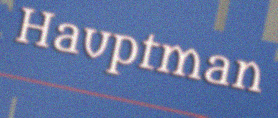
Hauptman